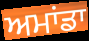
ਅਮਾਂਡਾ